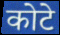
कोटे